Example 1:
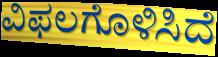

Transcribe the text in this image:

ವಿಫಲಗೊಳಿಸಿದೆ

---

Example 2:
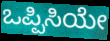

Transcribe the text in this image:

ಒಪ್ಪಿಸಿಯೇ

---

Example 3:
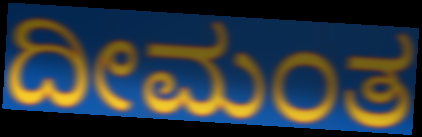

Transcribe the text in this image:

ದೀಮಂತ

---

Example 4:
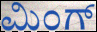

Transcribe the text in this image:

ಮಿಂಗ್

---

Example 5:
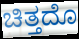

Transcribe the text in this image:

ಚಿತ್ತದೊ